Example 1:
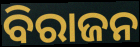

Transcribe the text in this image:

ବିରାଜନ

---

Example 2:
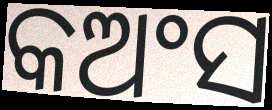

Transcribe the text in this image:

କଅଂସ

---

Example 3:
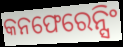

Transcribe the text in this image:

କନଫେରେନ୍ସିଂ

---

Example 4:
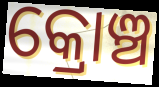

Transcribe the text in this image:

କ୍ରୋଞ୍ଚ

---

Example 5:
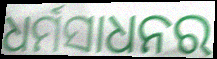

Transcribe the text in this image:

ଧର୍ମସାଧନର